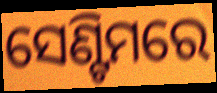
ସେଣ୍ଟିମରେ